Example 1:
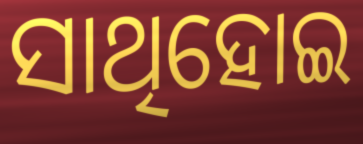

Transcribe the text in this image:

ସାଥିହୋଇ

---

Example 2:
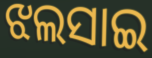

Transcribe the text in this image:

ଝଲସାଇ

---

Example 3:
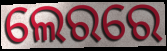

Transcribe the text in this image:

ଲେରରେ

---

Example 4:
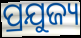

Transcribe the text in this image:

ପ୍ରଯୁଜ୍ୟ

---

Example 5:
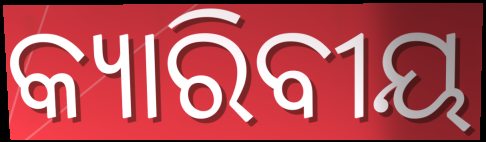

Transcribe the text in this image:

କ୍ୟାରିବୀୟ